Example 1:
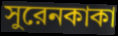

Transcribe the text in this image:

সুরেনকাকা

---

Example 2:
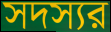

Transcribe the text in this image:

সদস্যর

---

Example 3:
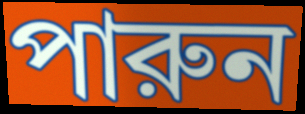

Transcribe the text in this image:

পারুন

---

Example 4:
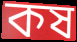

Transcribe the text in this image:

কষ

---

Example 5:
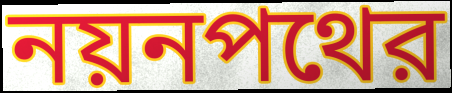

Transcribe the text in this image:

নয়নপথের